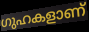
ഗുഹകളാണ്